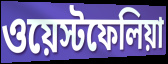
ওয়েস্টফেলিয়া